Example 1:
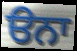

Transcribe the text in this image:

ੳਨਾ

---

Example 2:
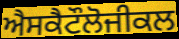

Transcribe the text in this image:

ਐਸਕੈਟੌਲੋਜੀਕਲ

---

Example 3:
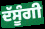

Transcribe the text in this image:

ਦੱਸੂੰਗੀ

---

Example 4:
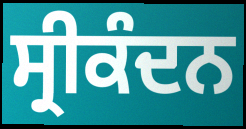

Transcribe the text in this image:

ਸ੍ਰੀਕੰਦਨ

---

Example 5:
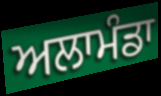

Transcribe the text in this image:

ਅਲਾਮੰਡਾ